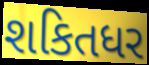
શકિતધર